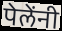
पेलेंनी